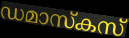
ഡമാസ്കസ്